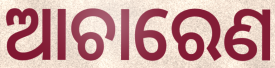
ଆଚାରେଣ